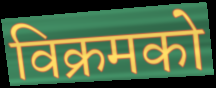
विक्रमको